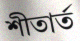
শীতাৰ্ত